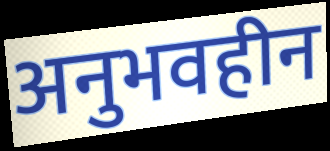
अनुभवहीन